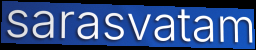
sarasvatam